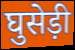
घुसेड़ी